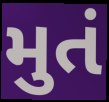
મુતં